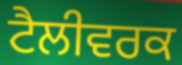
ਟੈਲੀਵਰਕ